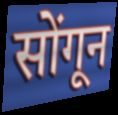
सोंगून